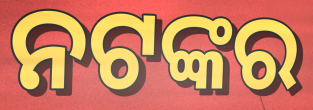
ନଟଙ୍କର